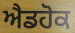
ਐਡਹੋਕ